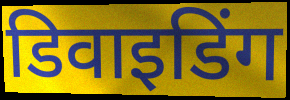
डिवाइडिंग